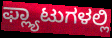
ಫ್ಲ್ಯಾಟುಗಳಲ್ಲಿ